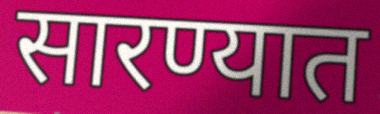
सारण्यात